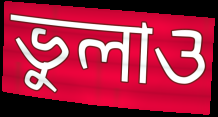
ভুলাও